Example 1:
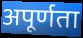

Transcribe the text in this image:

अपूर्णता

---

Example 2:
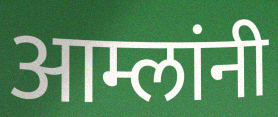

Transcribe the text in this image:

आम्लांनी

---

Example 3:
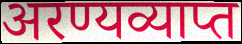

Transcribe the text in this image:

अरण्यव्याप्त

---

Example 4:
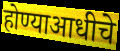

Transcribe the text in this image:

होण्याआधीचे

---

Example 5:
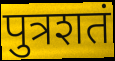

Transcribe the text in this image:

पुत्रशतं